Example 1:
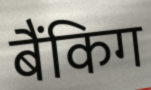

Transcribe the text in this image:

बैंकिग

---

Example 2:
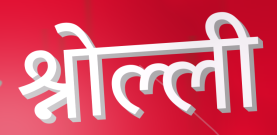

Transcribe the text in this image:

श्नोल्ली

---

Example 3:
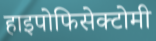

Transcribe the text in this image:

हाइपोफिसेक्टोमी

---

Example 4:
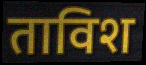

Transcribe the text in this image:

ताविश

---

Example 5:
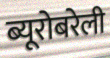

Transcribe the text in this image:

ब्यूरोबरेली